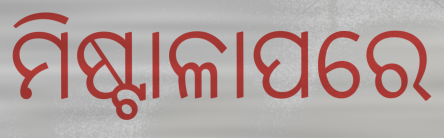
ମିଷ୍ଟାଳାପରେ